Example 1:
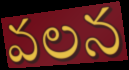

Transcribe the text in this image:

వలన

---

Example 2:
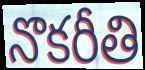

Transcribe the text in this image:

నొకరీతి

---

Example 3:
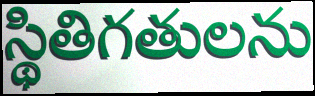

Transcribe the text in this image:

స్థితిగతులను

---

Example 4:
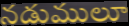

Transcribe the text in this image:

నడుములూ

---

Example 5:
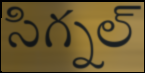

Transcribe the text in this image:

సిగ్నల్